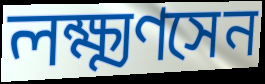
লক্ষ্মণসেন